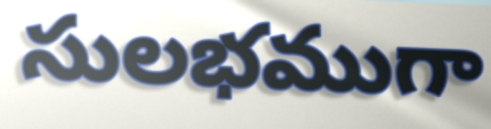
సులభముగా